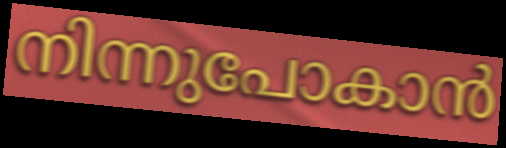
നിന്നുപോകാൻ